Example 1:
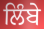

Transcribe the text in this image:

ਲਿੰਬੇ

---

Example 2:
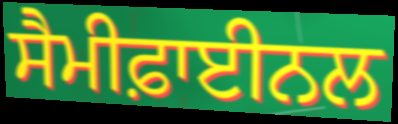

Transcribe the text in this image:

ਸੈਮੀਫ਼ਾਈਨਲ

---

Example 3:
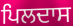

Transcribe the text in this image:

ਪਿਲਦਾਸ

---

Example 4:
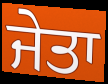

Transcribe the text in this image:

ਜੇਤਾ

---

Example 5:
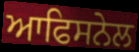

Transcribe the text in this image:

ਆਫਿਸਨੇਲ